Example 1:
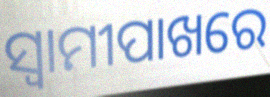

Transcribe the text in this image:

ସ୍ୱାମୀପାଖରେ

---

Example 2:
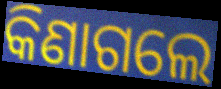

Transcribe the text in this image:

କିଣାଗଲେ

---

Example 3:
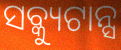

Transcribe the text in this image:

ସବ୍କ୍ୟୁଟାନ୍ସ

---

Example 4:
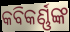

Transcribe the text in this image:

କବିକର୍ଣ୍ଣଙ୍କ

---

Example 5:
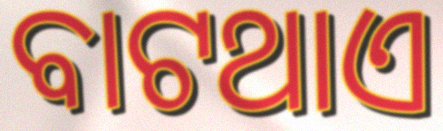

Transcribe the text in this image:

ବାଟଥାଏ